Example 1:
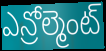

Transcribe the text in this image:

ఎన్రోల్మెంట్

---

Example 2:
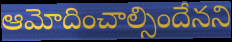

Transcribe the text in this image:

ఆమోదించాల్సిందేనని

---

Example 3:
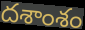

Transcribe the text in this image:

దశాంశం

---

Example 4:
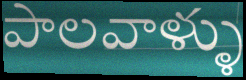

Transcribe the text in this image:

పాలవాళ్ళు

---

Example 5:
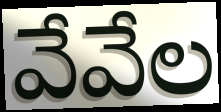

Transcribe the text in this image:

వేవేల